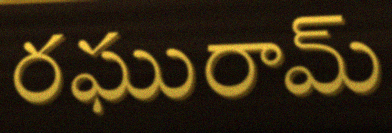
రఘురామ్